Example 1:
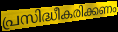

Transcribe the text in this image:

പ്രസിദ്ധീകരിക്കണം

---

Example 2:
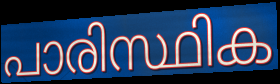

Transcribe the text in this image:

പാരിസ്ഥിക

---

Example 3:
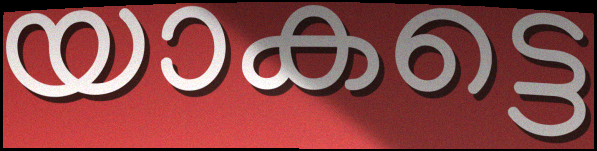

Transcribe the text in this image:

യാകട്ടെ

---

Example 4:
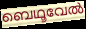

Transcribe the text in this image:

ബെഥൂവേൽ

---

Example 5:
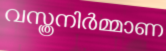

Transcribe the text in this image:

വസ്ത്രനിർമ്മാണ